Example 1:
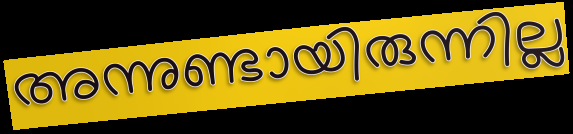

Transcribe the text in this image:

അന്നുണ്ടായിരുന്നില്ല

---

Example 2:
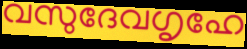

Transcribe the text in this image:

വസുദേവഗൃഹേ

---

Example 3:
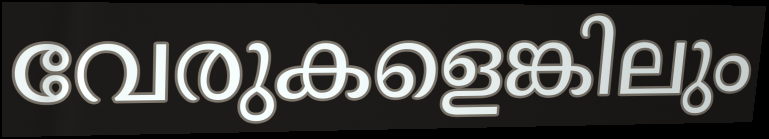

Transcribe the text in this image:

വേരുകളെങ്കിലും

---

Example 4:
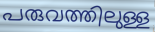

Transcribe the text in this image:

പരുവത്തിലുള്ള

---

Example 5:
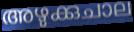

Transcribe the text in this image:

അഴുക്കുചാല